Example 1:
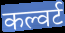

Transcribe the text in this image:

कल्वर्ट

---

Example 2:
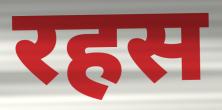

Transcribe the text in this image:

रहस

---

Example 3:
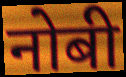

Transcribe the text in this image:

नोबी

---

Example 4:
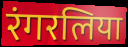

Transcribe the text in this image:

रंगरलिया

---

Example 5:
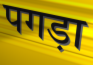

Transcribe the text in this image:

पगड़ा